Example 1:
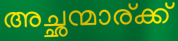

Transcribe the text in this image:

അച്ഛന്മാര്ക്ക്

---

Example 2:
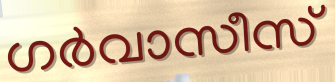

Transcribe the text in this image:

ഗർവാസീസ്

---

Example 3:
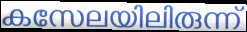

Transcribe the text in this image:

കസേലയിലിരുന്ന്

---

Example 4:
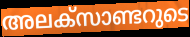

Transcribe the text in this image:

അലക്സാണ്ടറുടെ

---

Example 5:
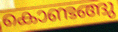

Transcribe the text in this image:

കൊണ്ടങ്ങു